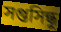
সপ্তসিন্ধু